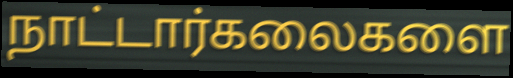
நாட்டார்கலைகளை